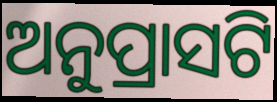
ଅନୁପ୍ରାସଟି